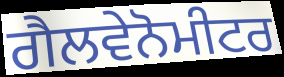
ਗੈਲਵੇਨੋਮੀਟਰ